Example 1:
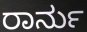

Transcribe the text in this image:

ರಾರ್ನು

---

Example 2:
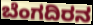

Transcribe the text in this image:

ಬೆಂಗದಿರನ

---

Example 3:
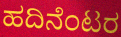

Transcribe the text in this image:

ಹದಿನೆಂಟರ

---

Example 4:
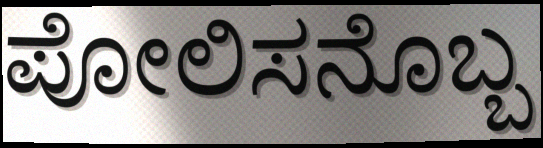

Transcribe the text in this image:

ಪೋಲಿಸನೊಬ್ಬ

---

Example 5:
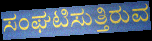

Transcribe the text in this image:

ಸಂಘಟಿಸುತ್ತಿರುವ